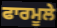
ਫਾਰਮੂਲੇ